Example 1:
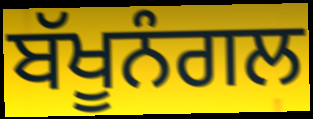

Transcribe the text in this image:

ਬੱਖੂਨੰਗਲ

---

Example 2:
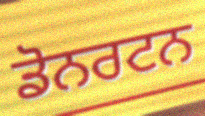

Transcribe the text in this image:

ਡੋਨਰਟਨ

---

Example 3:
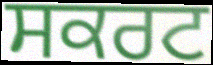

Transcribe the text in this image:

ਸਕਰਟ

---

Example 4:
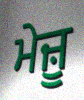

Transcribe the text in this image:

ਮੇਜ਼ੂ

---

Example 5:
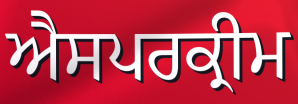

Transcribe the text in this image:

ਐਸਪਰਕ੍ਰੀਮ